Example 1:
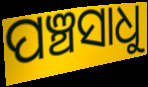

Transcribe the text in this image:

ପଞ୍ଚସାଧୁ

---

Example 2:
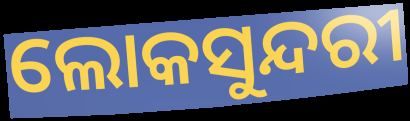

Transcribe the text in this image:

ଲୋକସୁନ୍ଦରୀ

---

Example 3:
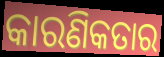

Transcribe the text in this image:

କାରଣିକତାର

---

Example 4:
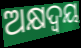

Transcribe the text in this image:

ଅକ୍ଷଦ୍ବୟ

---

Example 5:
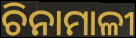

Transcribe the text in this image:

ଚିନାମାଳୀ